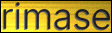
rimase